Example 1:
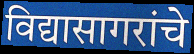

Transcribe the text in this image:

विद्यासागरांचे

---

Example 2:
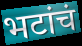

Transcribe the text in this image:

भटांचं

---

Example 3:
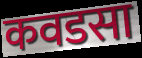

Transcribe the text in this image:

कवडसा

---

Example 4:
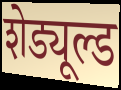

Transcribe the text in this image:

शेड्यूल्ड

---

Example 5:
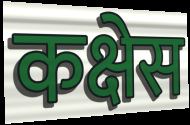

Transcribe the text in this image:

कक्षेस